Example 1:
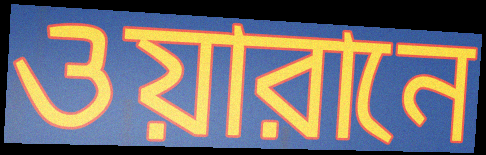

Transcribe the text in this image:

ওয়ারানে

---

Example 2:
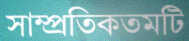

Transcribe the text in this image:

সাম্প্রতিকতমটি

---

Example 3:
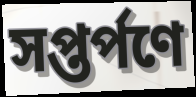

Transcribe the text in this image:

সপ্তর্পণে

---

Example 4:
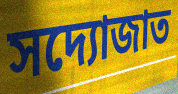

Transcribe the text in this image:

সদ্যোজাত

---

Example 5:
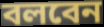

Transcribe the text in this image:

বলবেন